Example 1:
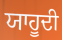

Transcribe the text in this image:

ਯਾਹੂਦੀ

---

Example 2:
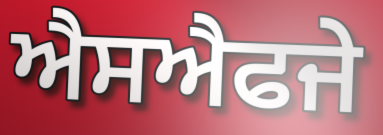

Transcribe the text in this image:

ਐਸਐਫਜੇ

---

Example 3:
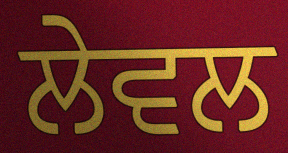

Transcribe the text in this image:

ਲੇਵਲ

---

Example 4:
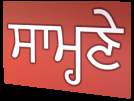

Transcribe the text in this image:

ਸਾਮ੍ਹਣੇ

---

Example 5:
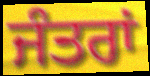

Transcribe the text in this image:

ਜੰਤਰਾਂ